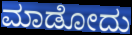
ಮಾಡೋದು